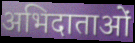
अभिदाताओं